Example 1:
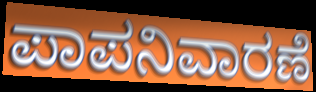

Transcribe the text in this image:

ಪಾಪನಿವಾರಣೆ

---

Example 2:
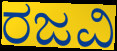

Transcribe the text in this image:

ರಜವಿ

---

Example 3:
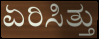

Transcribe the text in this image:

ಏರಿಸಿತ್ತು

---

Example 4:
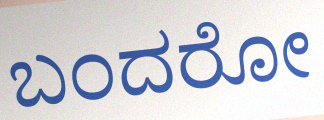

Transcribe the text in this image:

ಬಂದರೋ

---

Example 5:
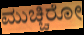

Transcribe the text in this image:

ಮುಚ್ಚಿರೋ